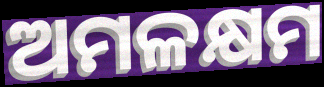
ଅମଳକ୍ଷମ